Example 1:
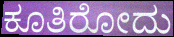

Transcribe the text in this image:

ಕೂತಿರೋದು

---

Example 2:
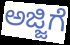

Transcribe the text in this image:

ಅಜ್ಜಿಗೆ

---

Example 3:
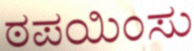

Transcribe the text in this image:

ಠಪಯಿಂಸು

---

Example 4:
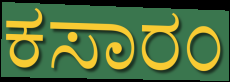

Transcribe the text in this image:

ಕಸಾರಂ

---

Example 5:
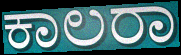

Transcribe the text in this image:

ಕಾಲರಾ